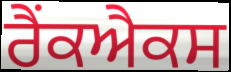
ਰੈਂਕਐਕਸ